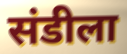
संडीला